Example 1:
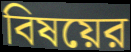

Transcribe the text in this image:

বিষয়ের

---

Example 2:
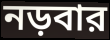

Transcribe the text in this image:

নড়বার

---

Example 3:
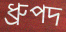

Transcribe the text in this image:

ধ্রুপদ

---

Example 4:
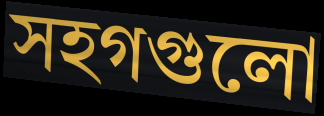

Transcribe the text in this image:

সহগগুলো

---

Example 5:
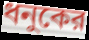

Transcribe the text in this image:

ধনুকের